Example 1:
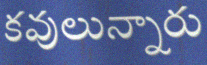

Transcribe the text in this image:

కవులున్నారు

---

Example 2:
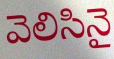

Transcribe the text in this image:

వెలిసినై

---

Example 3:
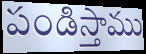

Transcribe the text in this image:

పండిస్తాము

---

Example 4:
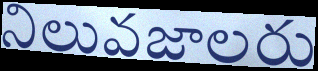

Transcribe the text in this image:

నిలువజాలరు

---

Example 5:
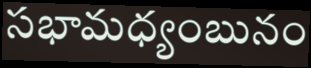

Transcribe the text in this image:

సభామధ్యంబునం